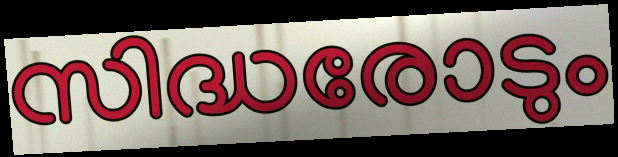
സിദ്ധരോടും